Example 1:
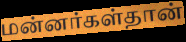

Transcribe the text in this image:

மன்னர்கள்தான்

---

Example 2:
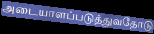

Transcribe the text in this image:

அடையாளப்படுத்துவதோடு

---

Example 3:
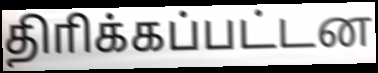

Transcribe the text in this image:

திரிக்கப்பட்டன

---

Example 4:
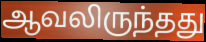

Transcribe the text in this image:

ஆவலிருந்தது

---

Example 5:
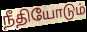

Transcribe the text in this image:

நீதியோடும்